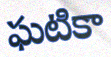
ఘటికా